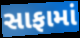
સાફામાં